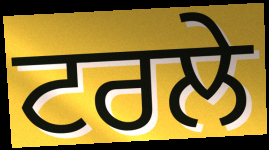
ਟਰਲੇ